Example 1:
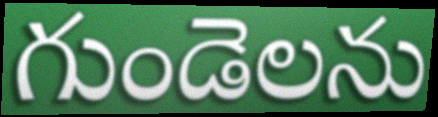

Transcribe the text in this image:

గుండెలను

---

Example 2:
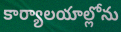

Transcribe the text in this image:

కార్యాలయాల్లోను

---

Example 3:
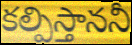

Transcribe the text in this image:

కల్పిస్తాననీ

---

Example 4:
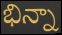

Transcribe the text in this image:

భిన్నా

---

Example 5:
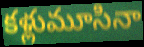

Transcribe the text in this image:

కళ్లుమూసినా